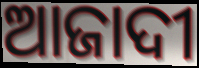
ଆଜାଦୀ